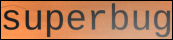
superbug